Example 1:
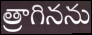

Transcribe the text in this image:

త్రాగినను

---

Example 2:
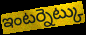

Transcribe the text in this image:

ఇంటర్నెట్కు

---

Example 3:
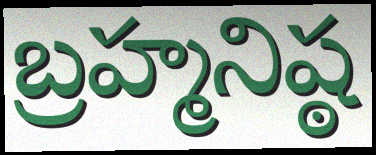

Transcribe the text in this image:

బ్రహ్మనిష్ఠ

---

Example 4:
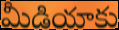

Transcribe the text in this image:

మీడియాకు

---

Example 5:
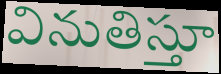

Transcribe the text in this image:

వినుతిస్తూ